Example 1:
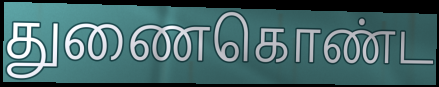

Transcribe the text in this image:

துணைகொண்ட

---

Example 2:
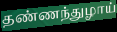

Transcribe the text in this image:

தண்ணந்துழாய்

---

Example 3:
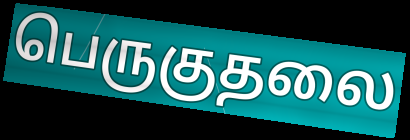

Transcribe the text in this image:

பெருகுதலை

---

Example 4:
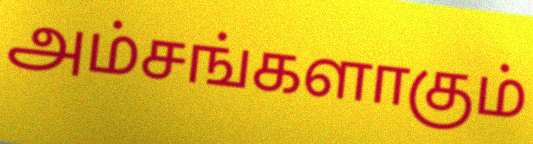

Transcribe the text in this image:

அம்சங்களாகும்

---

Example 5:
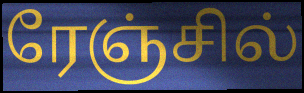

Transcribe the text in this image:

ரேஞ்சில்